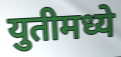
युतीमध्ये